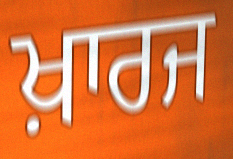
ਖ਼ਾਰਜ